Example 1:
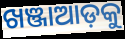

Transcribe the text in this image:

ଖଞ୍ଜାଆଡ଼କୁ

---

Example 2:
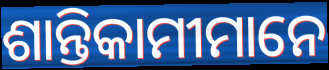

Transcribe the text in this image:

ଶାନ୍ତିକାମୀମାନେ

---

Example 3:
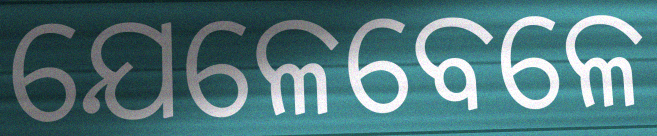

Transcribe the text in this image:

ଯେଳେବେଳେ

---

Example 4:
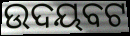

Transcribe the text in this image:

ଉଦୟବଟ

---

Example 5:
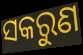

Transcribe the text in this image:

ସକରୁଣ